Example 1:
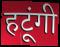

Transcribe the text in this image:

हटूंगी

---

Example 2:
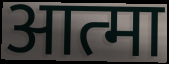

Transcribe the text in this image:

आत्‍मा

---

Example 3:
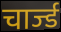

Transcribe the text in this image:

चार्ज्ड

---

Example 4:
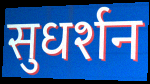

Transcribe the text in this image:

सुधर्शन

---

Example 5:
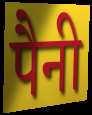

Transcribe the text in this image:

पैनी